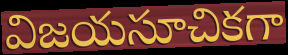
విజయసూచికగా